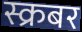
स्‍क्रबर